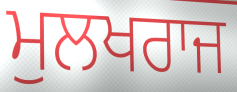
ਮੁਲਖਰਾਜ